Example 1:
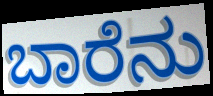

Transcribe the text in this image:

ಬಾರೆನು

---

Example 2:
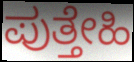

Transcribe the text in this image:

ಪುತ್ತೇಹಿ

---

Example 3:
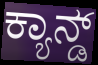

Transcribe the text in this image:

ಕ್ಯಾನ್ಡ್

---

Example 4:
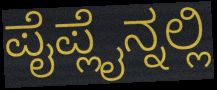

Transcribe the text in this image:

ಪೈಪ್ಲೈನ್ನಲ್ಲಿ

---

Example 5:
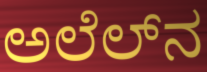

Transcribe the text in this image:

ಅಲೆಲ್‌ನ